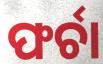
ଫର୍ଚା